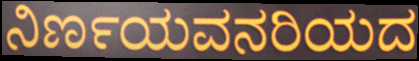
ನಿರ್ಣಯವನರಿಯದ